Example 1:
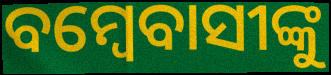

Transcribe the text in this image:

ବମ୍ବେବାସୀଙ୍କୁ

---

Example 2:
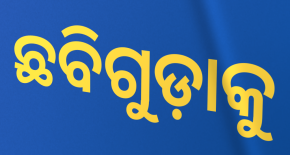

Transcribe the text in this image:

ଛବିଗୁଡ଼ାକୁ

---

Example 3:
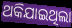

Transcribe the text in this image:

ଥକିଯାଇଥିଲା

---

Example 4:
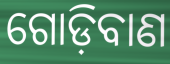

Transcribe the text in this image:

ଗୋଡ଼ିବାଣ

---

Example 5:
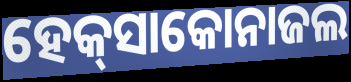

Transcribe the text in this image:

ହେକ୍‌ସାକୋନାଜଲ